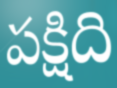
పక్షిది